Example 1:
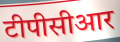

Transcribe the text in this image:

टीपीसीआर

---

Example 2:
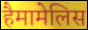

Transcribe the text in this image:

हैमामेलिस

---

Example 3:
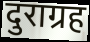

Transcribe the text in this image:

दुराग्रह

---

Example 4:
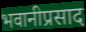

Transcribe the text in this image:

भवानीप्रसाद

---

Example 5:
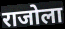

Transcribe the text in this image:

राजोला